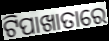
ଟିପାଖାତାରେ